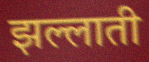
झल्लाती